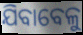
ଯିବାବେଳୁ